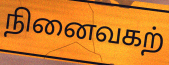
நினைவகற்